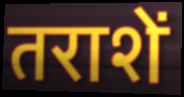
तराशें